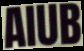
AIUB